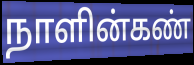
நாளின்கண்